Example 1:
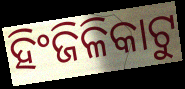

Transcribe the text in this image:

ହିଂଜିଳିକାଟୁ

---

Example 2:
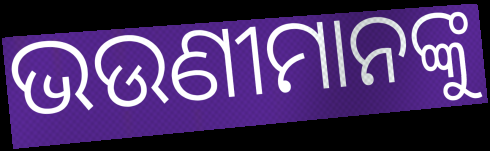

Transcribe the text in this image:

ଭଉଣୀମାନଙ୍କୁ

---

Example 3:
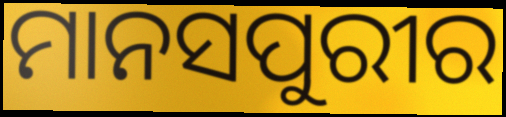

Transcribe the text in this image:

ମାନସପୁରୀର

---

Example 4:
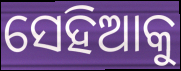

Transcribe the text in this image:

ସେହିଆକୁ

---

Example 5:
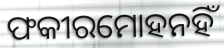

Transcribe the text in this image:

ଫକୀରମୋହନହିଁ